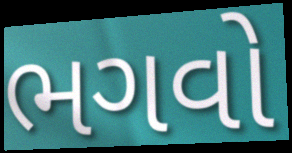
ભગવો